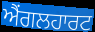
ਐਂਗਲਹਾਰਟ